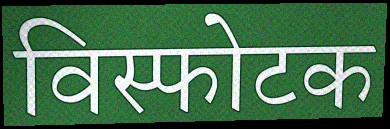
विस्फोटक